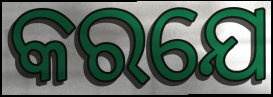
କରଯେ